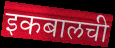
इकबालची